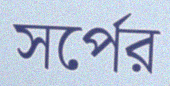
সর্পের